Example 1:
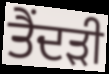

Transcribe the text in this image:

ਤੈਂਦੜੀ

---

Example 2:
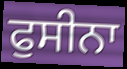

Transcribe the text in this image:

ਫੁਸੀਨਾ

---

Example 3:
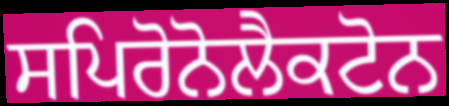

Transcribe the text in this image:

ਸਪਿਰੋਨੋਲੈਕਟੋਨ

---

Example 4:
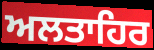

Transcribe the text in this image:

ਅਲਤਾਹਿਰ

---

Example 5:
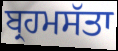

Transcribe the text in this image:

ਬ੍ਰਹਮਸੱਤਾ